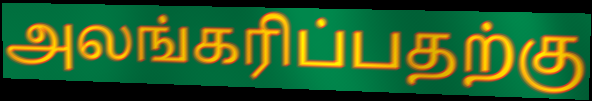
அலங்கரிப்பதற்கு